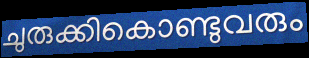
ചുരുക്കികൊണ്ടുവരും